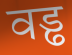
वड्ढ